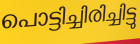
പൊട്ടിച്ചിരിച്ചിട്ടു